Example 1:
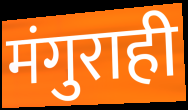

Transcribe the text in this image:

मंगुराही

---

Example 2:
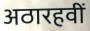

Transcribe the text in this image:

अठारहवीं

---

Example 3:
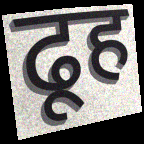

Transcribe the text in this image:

ढूह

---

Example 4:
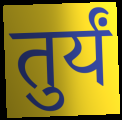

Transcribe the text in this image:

तुर्यं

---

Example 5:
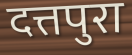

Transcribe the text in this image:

दत्तपुरा